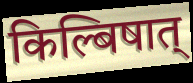
किल्बिषात्